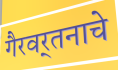
गैरवर्तनाचे